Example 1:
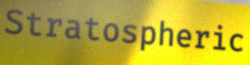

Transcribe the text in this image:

Stratospheric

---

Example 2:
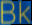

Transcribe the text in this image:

Bk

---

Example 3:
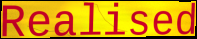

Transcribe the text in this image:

Realised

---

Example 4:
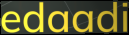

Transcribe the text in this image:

edaadi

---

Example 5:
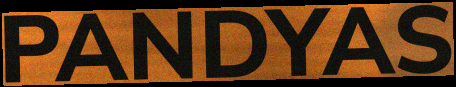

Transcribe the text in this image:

PANDYAS